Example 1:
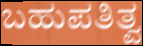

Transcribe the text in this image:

ಬಹುಪತಿತ್ವ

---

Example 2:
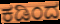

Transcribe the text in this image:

ಕಡಿಂದ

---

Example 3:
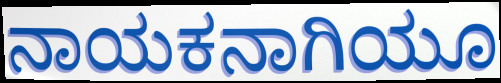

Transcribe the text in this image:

ನಾಯಕನಾಗಿಯೂ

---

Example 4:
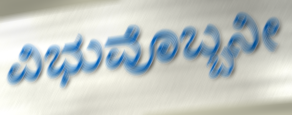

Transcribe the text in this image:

ವಿಭುವೊಬ್ಬನೀ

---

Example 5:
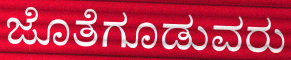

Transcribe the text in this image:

ಜೊತೆಗೂಡುವರು